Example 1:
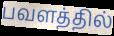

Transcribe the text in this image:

பவளத்தில்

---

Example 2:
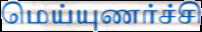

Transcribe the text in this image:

மெய்யுணர்ச்சி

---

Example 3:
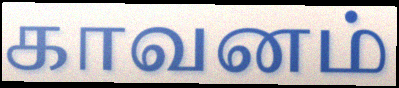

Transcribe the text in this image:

காவனம்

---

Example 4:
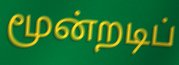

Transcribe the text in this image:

மூன்றடிப்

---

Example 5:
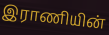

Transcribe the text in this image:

இராணியின்